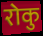
रोकु